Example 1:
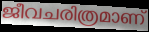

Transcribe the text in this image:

ജീവചരിത്രമാണ്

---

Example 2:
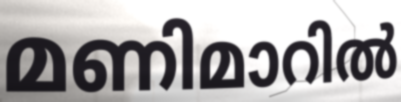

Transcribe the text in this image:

മണിമാറിൽ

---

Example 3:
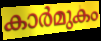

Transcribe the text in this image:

കാർമുകം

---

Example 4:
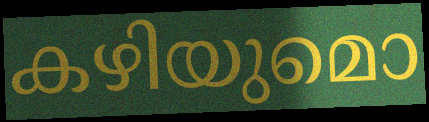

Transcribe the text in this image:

കഴിയുമൊ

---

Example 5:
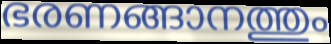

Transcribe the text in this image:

ഭരണങ്ങാനത്തും